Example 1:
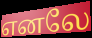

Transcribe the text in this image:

எனலே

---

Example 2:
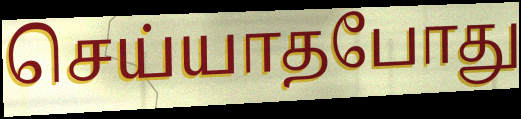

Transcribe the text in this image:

செய்யாதபோது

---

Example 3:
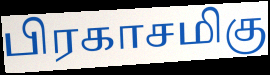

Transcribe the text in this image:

பிரகாசமிகு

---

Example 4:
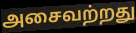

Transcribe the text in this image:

அசைவற்றது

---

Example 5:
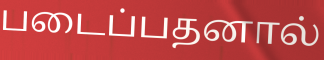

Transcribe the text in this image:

படைப்பதனால்